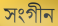
সংগীন